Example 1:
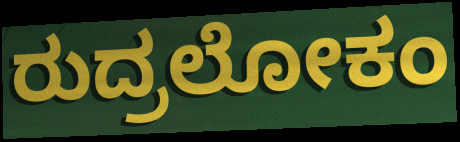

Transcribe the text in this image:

ರುದ್ರಲೋಕಂ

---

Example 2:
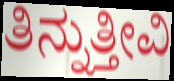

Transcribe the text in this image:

ತಿನ್ನುತ್ತೀವಿ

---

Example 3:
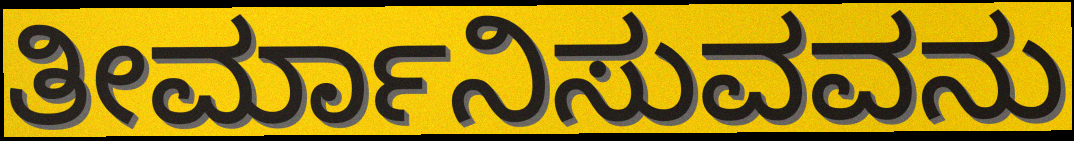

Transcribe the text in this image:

ತೀರ್ಮಾನಿಸುವವನು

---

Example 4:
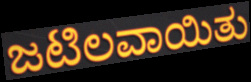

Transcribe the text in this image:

ಜಟಿಲವಾಯಿತು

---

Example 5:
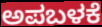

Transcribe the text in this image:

ಅಪಬಳಕೆ